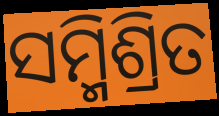
ସମ୍ମିଶ୍ରିତ